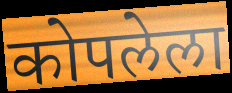
कोपलेला